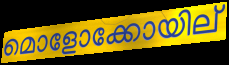
മൊളോക്കോയില്